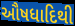
ઔષધાદિથી